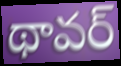
థావర్